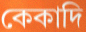
কেকাদি